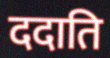
ददाति